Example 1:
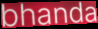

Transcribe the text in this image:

bhanda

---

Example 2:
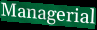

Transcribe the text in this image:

Managerial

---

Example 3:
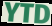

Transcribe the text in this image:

YTD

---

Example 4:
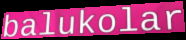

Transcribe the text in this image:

balukolar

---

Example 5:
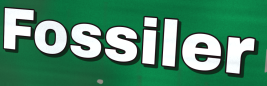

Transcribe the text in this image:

Fossiler